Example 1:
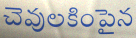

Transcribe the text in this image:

చెవులకింపైన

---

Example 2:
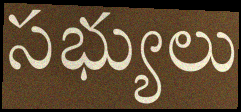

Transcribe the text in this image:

సభ్యులు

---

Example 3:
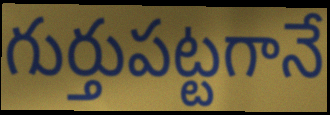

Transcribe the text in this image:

గుర్తుపట్టగానే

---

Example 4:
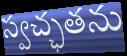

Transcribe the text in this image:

స్వచ్ఛతను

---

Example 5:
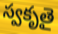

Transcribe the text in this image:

స్వకృతై